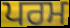
ਪਰਮ